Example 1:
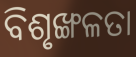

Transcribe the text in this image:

ବିଶୃଙ୍ଖଳତା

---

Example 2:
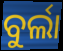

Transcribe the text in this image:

ବୁର୍ଲା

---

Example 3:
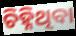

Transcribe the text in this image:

ଚିହ୍ନିଥିବା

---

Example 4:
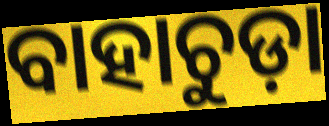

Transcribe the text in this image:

ବାହାଚୁଡ଼ା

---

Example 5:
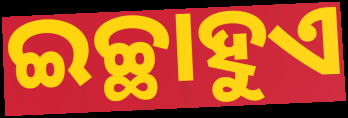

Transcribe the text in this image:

ଇଚ୍ଛାହୁଏ